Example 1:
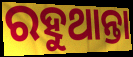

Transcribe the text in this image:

ରହୁଥାନ୍ତା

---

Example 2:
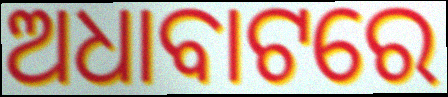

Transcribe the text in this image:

ଅଧାବାଟରେ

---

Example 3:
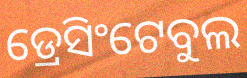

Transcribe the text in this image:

ଡ୍ରେସିଂଟେବୁଲ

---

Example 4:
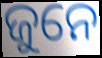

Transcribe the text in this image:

ଜୁନେ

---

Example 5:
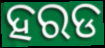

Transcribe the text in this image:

ହରଡ